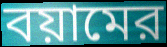
বয়ামের